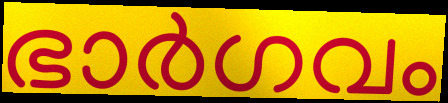
ഭാർഗവം